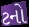
ટનો